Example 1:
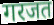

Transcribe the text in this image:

गरजत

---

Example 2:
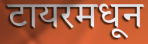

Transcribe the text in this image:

टायरमधून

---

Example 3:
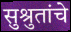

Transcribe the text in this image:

सुश्रुतांचे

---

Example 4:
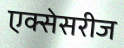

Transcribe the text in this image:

एक्सेसरीज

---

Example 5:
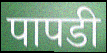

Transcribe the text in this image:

पापडी